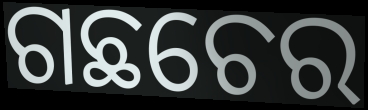
ଗଛଚେର